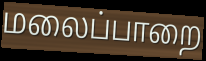
மலைப்பாறை